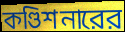
কণ্ডিশনারের